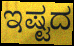
ಇಷ್ಟದ